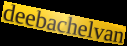
deebachelvan